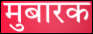
मुबारक